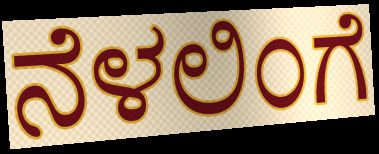
ನೆಳಲಿಂಗೆ